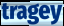
tragey